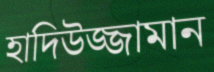
হাদিউজ্জামান